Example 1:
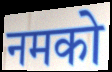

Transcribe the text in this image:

नमको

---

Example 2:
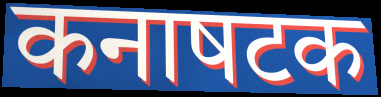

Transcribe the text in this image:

कनाषटक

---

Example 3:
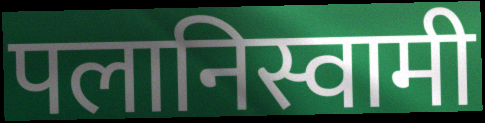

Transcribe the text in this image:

पलानिस्वामी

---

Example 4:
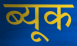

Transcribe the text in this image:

ब्यूक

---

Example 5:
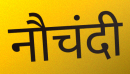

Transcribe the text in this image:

नौचंदी